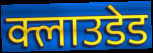
क्लाउडेड